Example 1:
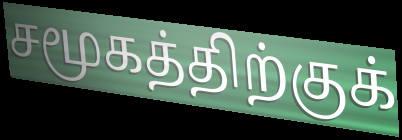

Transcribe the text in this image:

சமூகத்திற்குக்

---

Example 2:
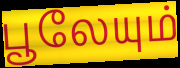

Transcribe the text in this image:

பூலேயும்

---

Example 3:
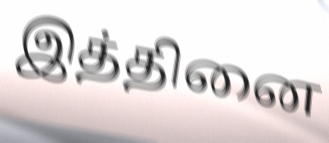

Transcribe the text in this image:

இத்தினை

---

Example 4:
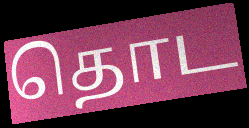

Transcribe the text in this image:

தொட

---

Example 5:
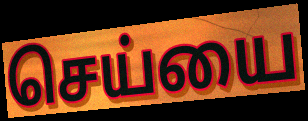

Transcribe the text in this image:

செய்யை